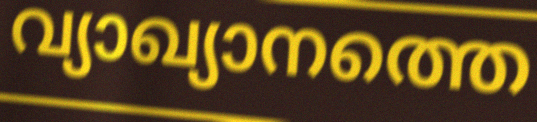
വ്യാഖ്യാനത്തെ